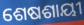
ଶେଷଶାୟୀ